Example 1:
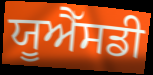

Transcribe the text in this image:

ਯੂਐੱਸਡੀ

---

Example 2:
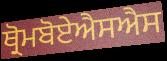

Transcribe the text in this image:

ਥ੍ਰੋਮਬੋਏਐਸਐਸ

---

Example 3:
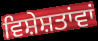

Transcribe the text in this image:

ਵਿਸ਼ੇਸ਼ਤਾਂਵਾਂ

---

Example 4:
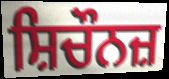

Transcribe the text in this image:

ਸ਼ਿਚੌਨਜ਼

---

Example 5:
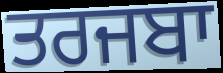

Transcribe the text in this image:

ਤਰਜਬਾ